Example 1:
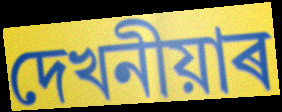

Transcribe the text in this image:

দেখনীয়াৰ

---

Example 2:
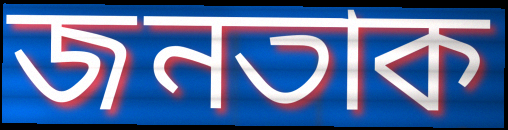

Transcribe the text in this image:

জনতাক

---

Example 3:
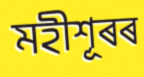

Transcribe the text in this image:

মহীশূৰৰ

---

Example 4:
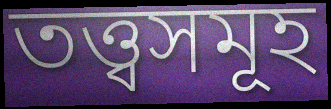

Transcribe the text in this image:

তত্ত্বসমূহ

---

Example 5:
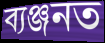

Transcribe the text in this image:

ব্যঞ্জনত